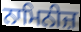
ਨਾਮਿਨੀਜ਼